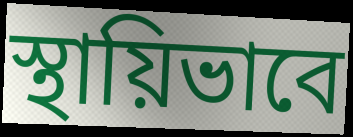
স্থায়িভাবে